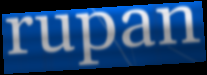
rupan